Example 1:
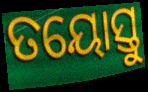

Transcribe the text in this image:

ତୟୋସ୍ତୁ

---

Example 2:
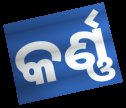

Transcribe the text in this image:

କର୍ଣ୍ଣ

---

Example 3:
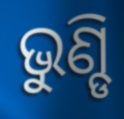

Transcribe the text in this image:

ଭୁଣ୍ଡି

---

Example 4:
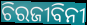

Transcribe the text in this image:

ଚିରଜୀବିନୀ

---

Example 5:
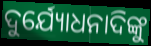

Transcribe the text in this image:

ଦୁର୍ଯ୍ୟୋଧନାଦିଙ୍କୁ